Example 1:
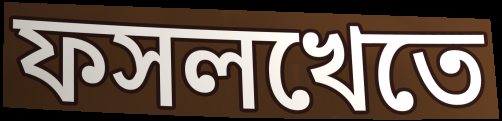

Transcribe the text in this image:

ফসলখেতে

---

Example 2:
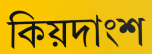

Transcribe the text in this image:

কিয়দাংশ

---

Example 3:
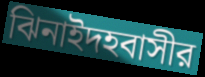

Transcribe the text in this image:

ঝিনাইদহবাসীর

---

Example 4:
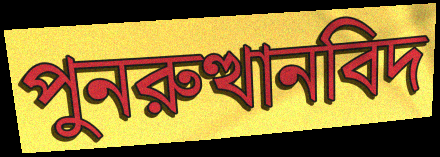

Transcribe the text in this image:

পুনরুত্থানবিদ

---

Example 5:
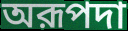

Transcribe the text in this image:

অরূপদা